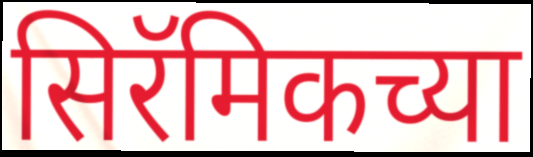
सिरॅमिकच्या